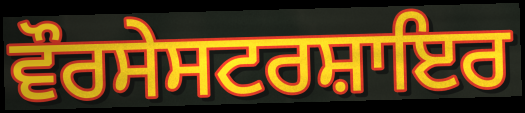
ਵੌਰਸੇਸਟਰਸ਼ਾਇਰ